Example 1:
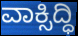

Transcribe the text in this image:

ವಾಕ್ಸಿದ್ಧಿ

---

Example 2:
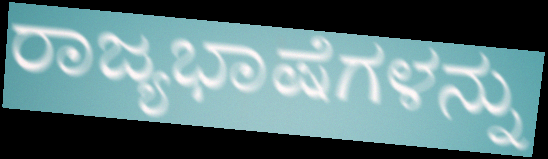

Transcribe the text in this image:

ರಾಜ್ಯಭಾಷೆಗಳನ್ನು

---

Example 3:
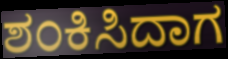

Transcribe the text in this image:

ಶಂಕಿಸಿದಾಗ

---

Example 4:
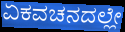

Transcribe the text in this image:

ಏಕವಚನದಲ್ಲೇ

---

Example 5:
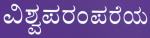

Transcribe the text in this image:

ವಿಶ್ವಪರಂಪರೆಯ